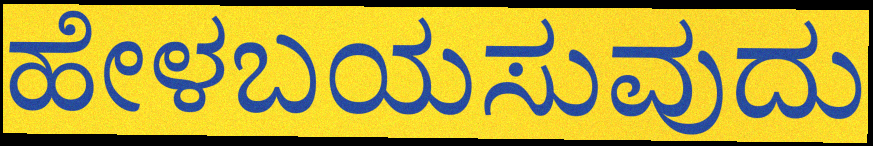
ಹೇಳಬಯಸುವುದು